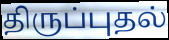
திருப்புதல்